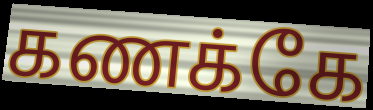
கணக்கே